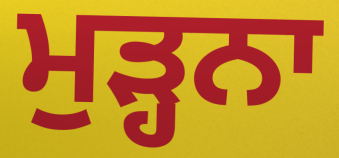
ਮੁੜ੍ਹਨਾ